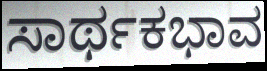
ಸಾರ್ಥಕಭಾವ